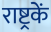
राष्ट्रकें